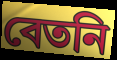
বেতনি